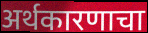
अर्थकारणाचा